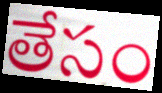
తేసం